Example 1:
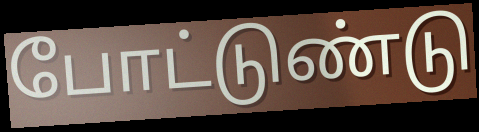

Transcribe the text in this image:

போட்டுண்டு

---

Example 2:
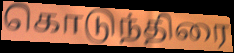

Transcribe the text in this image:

கொடுந்திரை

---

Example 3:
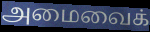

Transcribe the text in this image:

அமைவைக்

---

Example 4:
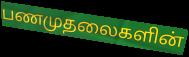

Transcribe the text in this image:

பணமுதலைகளின்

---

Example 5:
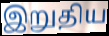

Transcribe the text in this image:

இறுதிய